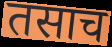
तसाच